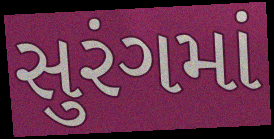
સુરંગમાં